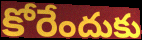
కోరేందుకు